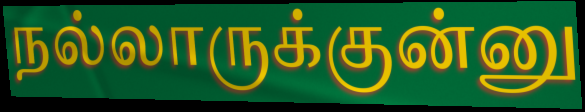
நல்லாருக்குன்னு